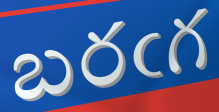
బరఁగ